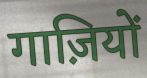
गाज़ियों